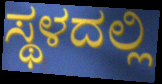
ಸ್ಥಳದಲ್ಲಿ